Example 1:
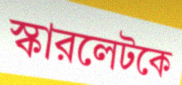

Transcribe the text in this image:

স্কারলেটকে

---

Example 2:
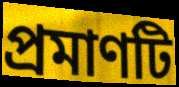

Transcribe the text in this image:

প্রমাণটি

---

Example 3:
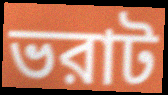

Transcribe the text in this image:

ভরাট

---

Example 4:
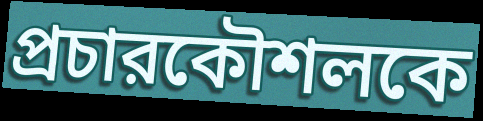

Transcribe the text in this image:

প্রচারকৌশলকে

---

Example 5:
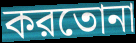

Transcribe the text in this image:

করতোনা